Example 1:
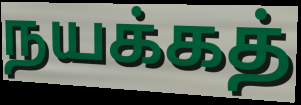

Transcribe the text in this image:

நயக்கத்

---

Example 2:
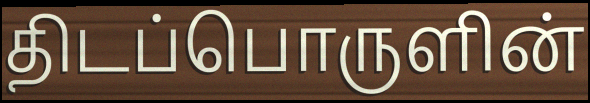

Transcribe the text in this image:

திடப்பொருளின்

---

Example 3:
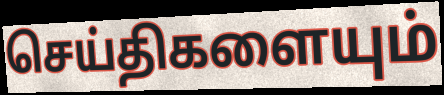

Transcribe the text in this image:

செய்திகளையும்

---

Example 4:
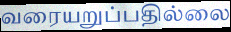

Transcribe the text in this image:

வரையறுப்பதில்லை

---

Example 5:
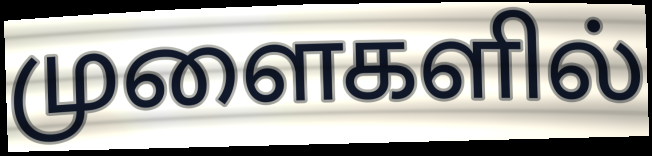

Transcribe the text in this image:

முளைகளில்